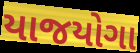
યાજયોગા